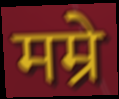
मम्रे